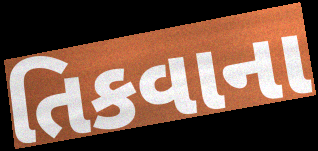
તિકવાના